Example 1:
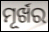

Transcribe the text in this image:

ମୂର୍ଖର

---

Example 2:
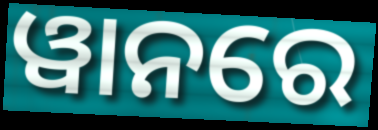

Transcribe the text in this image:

ୱାନରେ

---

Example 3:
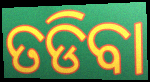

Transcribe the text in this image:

ତଡିବା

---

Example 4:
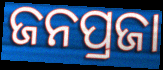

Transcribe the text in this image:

ଜନପ୍ରଜା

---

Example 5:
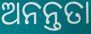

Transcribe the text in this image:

ଅନନ୍ତତା